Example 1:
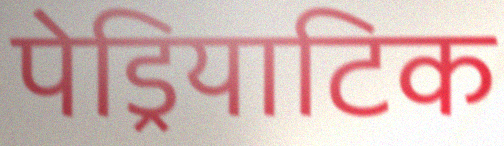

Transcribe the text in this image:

पेड्रियाटिक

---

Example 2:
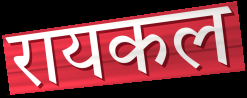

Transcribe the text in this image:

रायकल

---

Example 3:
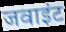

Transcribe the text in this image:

जवाइंट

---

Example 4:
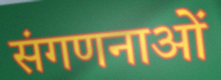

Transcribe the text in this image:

संगणनाओं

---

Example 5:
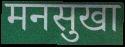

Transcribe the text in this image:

मनसुखा